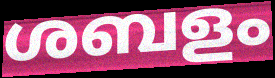
ശബളം